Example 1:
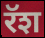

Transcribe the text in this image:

रॅश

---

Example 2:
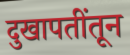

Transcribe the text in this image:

दुखापतींतून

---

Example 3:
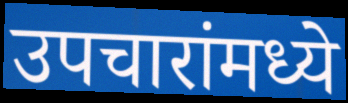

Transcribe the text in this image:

उपचारांमध्ये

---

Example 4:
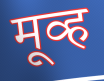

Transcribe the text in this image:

मूव्ह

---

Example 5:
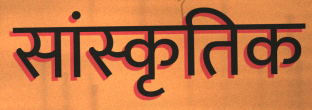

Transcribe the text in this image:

सांस्‍कृतिक